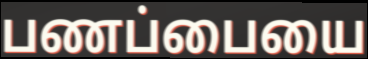
பணப்பையை